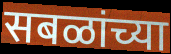
सबळांच्या